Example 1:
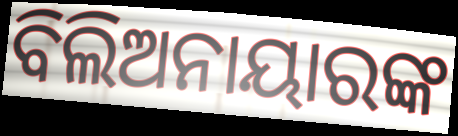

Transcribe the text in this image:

ବିଲିଅନାୟାରଙ୍କ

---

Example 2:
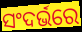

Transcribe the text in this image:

ସଂଦର୍ଭରେ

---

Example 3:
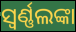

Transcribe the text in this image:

ସ୍ବର୍ଣ୍ଣଲଙ୍କା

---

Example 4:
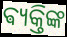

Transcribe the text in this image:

ଵ୍ୟକ୍ତିଙ୍କ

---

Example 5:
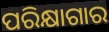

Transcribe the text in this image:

ପରିକ୍ଷାଗାର